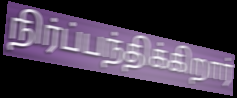
நிர்ப்பந்திக்கிறார்